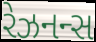
રેઝનન્સ